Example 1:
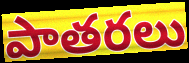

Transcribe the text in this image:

పాతరలు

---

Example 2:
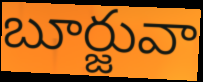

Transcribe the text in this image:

బూర్జువా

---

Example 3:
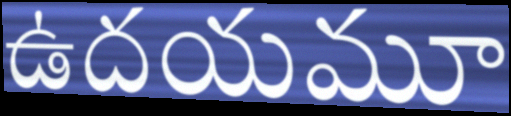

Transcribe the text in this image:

ఉదయమూ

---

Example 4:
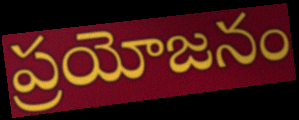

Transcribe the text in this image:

ప్రయోజనం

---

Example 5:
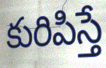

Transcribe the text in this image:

కురిపిస్తే